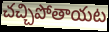
చచ్చిపోతాయట